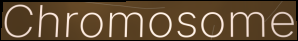
Chromosome